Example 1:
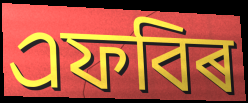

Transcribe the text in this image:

এফবিৰ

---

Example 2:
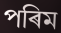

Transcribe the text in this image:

পৰিম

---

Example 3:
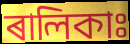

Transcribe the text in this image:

ৰালিকাঃ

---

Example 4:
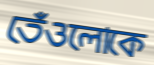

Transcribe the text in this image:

তেঁওলোকে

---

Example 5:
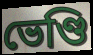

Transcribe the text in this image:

ভেণ্ডি